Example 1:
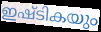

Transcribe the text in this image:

ഇഷ്ടികയും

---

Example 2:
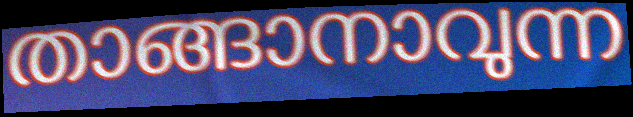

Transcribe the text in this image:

താങ്ങാനാവുന്ന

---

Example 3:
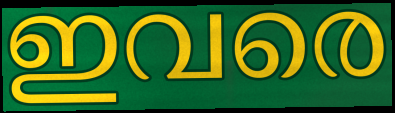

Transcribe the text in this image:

ഇവരെ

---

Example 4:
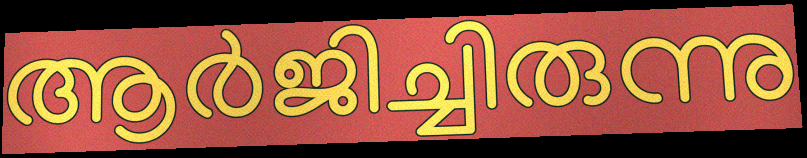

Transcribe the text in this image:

ആർജിച്ചിരുന്നു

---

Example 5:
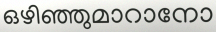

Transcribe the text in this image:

ഒഴിഞ്ഞുമാറാനോ